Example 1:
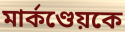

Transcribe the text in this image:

মার্কণ্ডেয়কে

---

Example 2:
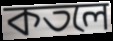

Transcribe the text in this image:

কতলে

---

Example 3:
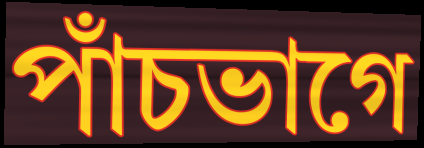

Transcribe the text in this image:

পাঁচভাগে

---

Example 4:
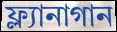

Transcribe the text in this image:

ফ্ল্যানাগান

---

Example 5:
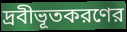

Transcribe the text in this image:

দ্রবীভূতকরণের